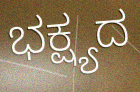
ಭಕ್ಷ್ಯದ